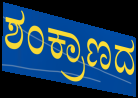
ಶಂಕ್ರಾಣದ